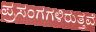
ಪ್ರಸಂಗಗಳಿರುತ್ತವೆ